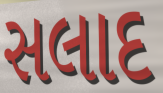
સલાદ